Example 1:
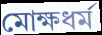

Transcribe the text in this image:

মোক্ষধর্ম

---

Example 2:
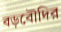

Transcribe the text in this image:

বড়বৌদির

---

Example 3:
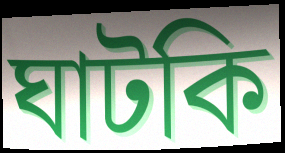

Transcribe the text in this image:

ঘাটকি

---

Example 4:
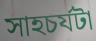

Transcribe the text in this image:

সাহচর্যটা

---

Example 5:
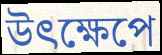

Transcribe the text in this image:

উৎক্ষেপে